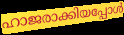
ഹാജരാക്കിയപ്പോൾ